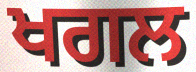
ਖਗਲ